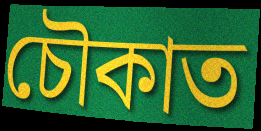
চৌকাত